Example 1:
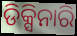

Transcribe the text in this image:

ଡିକ୍ସିନାରି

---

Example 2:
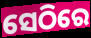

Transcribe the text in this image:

ସେଠିରେ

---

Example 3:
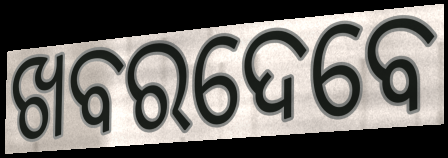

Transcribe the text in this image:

ଖବରଦେବେ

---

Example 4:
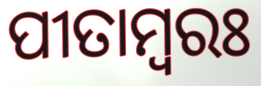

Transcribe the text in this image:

ପୀତାମ୍ୱରଃ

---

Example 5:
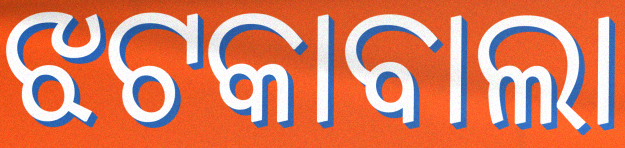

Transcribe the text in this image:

ଝଟକାବାଲା